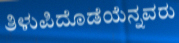
ತಿಳುಪಿದೊಡೆಯೆನ್ನವರು